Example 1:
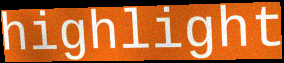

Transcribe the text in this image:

highlight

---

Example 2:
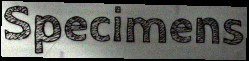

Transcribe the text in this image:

Specimens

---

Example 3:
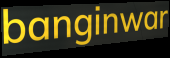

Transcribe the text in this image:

banginwar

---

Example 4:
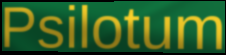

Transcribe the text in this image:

Psilotum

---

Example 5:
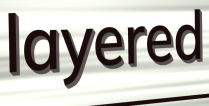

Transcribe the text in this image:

layered